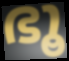
ഭൂ